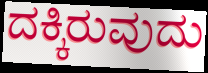
ದಕ್ಕಿರುವುದು